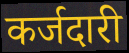
कर्जदारी